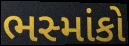
ભસ્માંકો